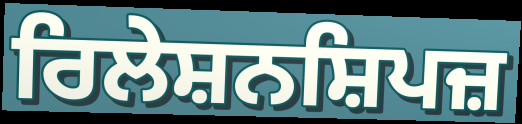
ਰਿਲੇਸ਼ਨਸ਼ਿਪਜ਼